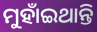
ମୁହାଁଇଥାନ୍ତି